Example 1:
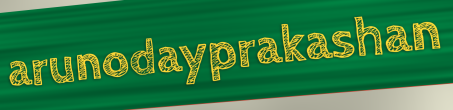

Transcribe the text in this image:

arunodayprakashan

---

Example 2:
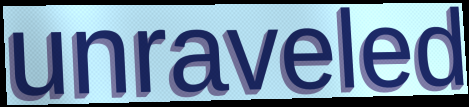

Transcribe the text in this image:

unraveled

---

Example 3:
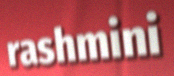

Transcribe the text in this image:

rashmini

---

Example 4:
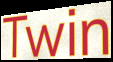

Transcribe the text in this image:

Twin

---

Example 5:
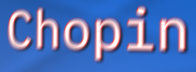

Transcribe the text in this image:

Chopin